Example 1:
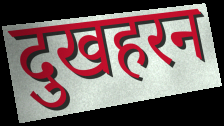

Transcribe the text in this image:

दुखहरन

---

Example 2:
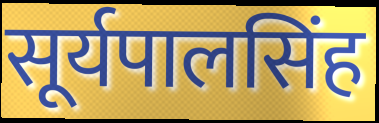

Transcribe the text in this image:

सूर्यपालसिंह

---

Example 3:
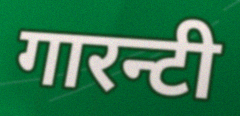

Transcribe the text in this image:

गारन्टी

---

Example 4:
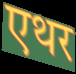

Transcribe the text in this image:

एथर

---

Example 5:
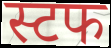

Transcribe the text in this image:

स्टफ